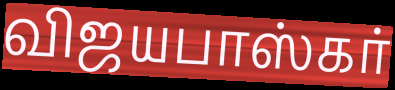
விஜயபாஸ்கர்